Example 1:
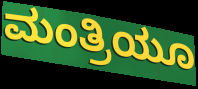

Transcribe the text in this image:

ಮಂತ್ರಿಯೂ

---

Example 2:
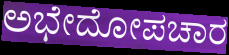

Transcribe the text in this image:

ಅಭೇದೋಪಚಾರ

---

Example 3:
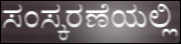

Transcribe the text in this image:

ಸಂಸ್ಕರಣೆಯಲ್ಲಿ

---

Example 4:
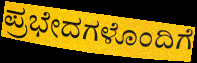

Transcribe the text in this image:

ಪ್ರಭೇದಗಳೊಂದಿಗೆ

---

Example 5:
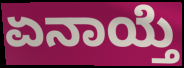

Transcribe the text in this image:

ಏನಾಯ್ತೆ